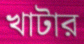
খাটার